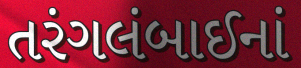
તરંગલંબાઈનાં